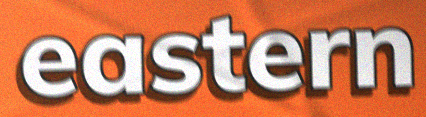
eastern